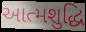
આત્મશુદ્ધિ